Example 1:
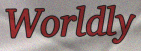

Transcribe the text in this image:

Worldly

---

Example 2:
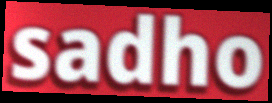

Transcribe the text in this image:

sadho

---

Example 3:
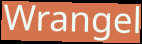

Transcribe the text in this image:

Wrangel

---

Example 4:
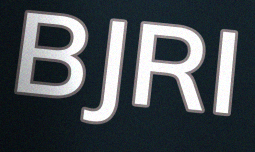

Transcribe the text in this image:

BJRI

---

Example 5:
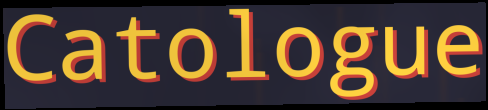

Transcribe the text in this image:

Catologue